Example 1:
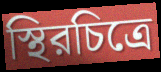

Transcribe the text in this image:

স্থিরচিত্রে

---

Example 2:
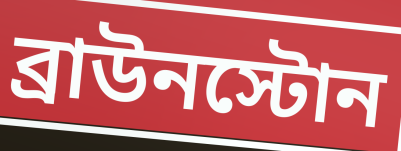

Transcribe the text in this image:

ব্রাউনস্টোন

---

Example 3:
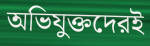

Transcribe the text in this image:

অভিযুক্তদেরই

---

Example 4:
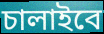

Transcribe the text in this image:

চালাইবে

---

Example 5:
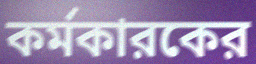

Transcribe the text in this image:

কর্মকারকের